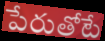
పేరుతోటే